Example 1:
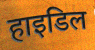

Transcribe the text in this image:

हाइडिल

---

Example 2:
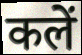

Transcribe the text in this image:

कलें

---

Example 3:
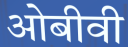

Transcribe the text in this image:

ओबीवी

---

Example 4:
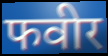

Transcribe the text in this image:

फवीर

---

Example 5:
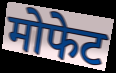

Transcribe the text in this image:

मोफेट